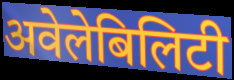
अवेलेबिलिटी